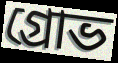
গ্রোভ